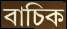
বাচিক